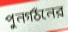
পুনর্গঠনের